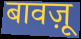
बावज़ू